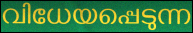
വിധേയപ്പെടുന്ന